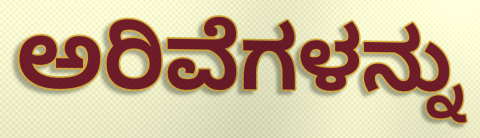
ಅರಿವೆಗಳನ್ನು